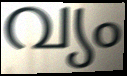
വ്യം